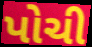
પોચી